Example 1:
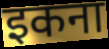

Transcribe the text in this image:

इकना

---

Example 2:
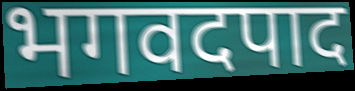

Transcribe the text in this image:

भगवदपाद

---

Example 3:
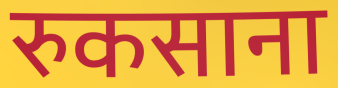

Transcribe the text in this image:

रुकसाना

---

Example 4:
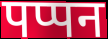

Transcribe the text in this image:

पप्पन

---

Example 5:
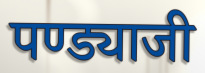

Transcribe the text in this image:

पण्ड्याजी